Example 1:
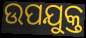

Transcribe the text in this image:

ଉପଯୁକ୍ତ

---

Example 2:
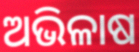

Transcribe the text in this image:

ଅଭିଳାଷ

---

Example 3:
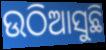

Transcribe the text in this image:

ଉଠିଆସୁଛି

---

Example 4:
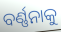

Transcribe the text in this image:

ବର୍ଣ୍ଣନାକୁ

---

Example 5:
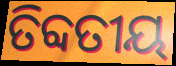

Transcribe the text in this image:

ତିବ୍ଦତୀୟ